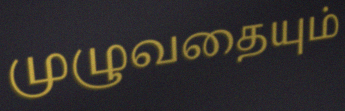
முழுவதையும்